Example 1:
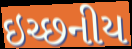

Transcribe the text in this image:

ઇચ્છનીય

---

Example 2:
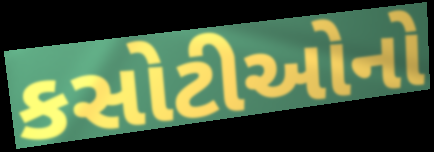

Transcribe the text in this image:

કસોટીઓનો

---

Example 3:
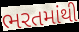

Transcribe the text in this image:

ભરતમાંથી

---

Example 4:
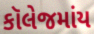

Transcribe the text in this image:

કૉલેજમાંય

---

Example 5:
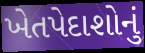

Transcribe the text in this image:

ખેતપેદાશોનું